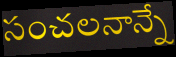
సంచలనాన్నే